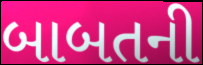
બાબતની